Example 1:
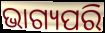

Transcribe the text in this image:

ଭାଗ୍ୟପରି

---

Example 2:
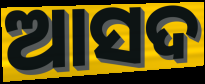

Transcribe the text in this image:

ଆସଦ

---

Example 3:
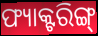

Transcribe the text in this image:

ଫ୍ୟାକ୍ଟରିଙ୍ଗ୍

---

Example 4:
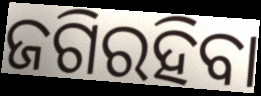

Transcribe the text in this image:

ଜଗିରହିବା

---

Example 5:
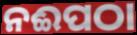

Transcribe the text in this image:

ନଈପଠା